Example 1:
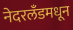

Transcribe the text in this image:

नेदरलँडमधून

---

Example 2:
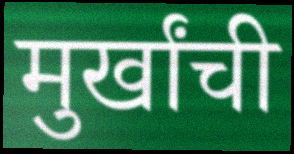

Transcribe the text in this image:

मुर्खांची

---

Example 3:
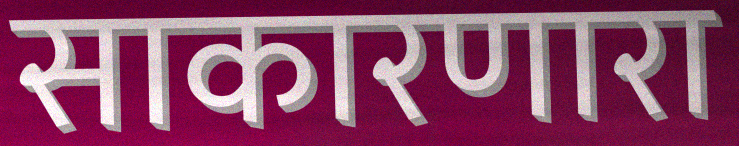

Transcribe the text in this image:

साकारणारा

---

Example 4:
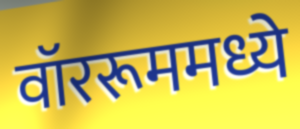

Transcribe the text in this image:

वॉररूममध्ये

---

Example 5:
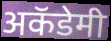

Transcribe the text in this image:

अकॅडेमी